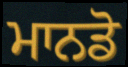
ਮਾਨਡੋ